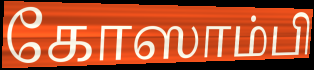
கோஸாம்பி